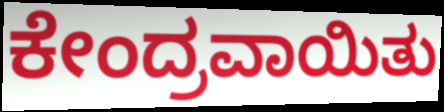
ಕೇಂದ್ರವಾಯಿತು